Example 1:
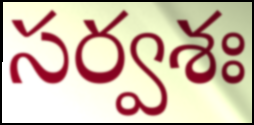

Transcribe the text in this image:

సర్వశః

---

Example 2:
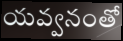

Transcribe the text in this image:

యవ్వనంతో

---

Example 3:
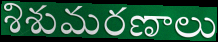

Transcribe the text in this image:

శిశుమరణాలు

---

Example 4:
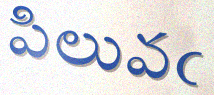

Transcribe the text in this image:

పిలువఁ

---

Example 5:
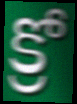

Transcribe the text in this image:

క్రో